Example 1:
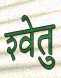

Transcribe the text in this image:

श्वेतु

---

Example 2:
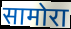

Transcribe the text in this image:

सामोरा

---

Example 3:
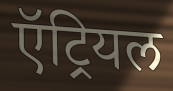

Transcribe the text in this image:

ऍट्रियल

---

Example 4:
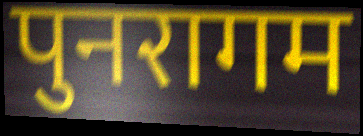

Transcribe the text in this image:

पुनरागम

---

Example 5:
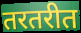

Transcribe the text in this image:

तरतरीत